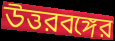
উত্তরবঙ্গের